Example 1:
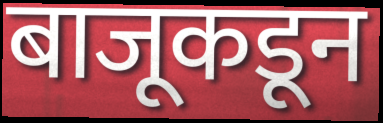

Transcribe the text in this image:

बाजूकडून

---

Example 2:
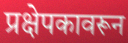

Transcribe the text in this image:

प्रक्षेपकावरून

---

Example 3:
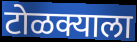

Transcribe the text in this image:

टोळक्याला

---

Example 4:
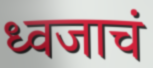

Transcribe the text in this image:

ध्वजाचं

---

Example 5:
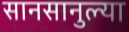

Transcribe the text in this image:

सानसानुल्या